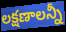
లక్షణాలన్నీ